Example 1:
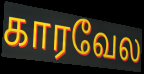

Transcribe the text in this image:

காரவேல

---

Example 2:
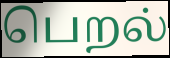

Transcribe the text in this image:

பெறல்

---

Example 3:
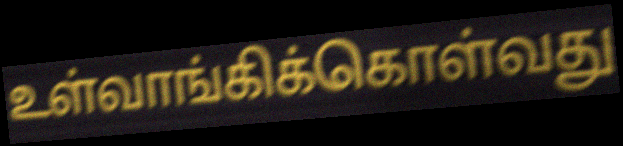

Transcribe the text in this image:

உள்வாங்கிக்கொள்வது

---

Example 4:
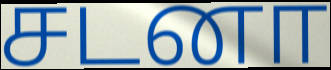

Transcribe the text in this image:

சடனா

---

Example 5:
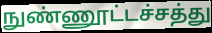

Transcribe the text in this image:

நுண்ணூட்டச்சத்து